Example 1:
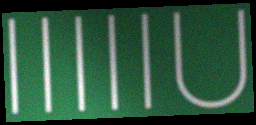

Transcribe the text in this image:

IIIIIU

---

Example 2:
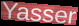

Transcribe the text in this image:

Yasser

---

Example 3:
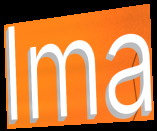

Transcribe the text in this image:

Ima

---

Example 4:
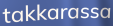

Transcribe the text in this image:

takkarassa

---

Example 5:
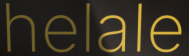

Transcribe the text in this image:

helale